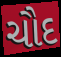
ચૌદ